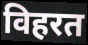
विहरत